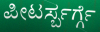
ಪೀಟರ್ಸ್ಬರ್ಗ್ಗೆ